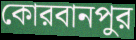
কোরবানপুর